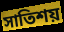
সাতিশয়